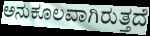
ಅನುಕೂಲವಾಗಿರುತ್ತದೆ